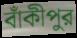
বাঁকীপুর